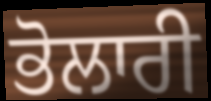
ਭੋਲਾਰੀ